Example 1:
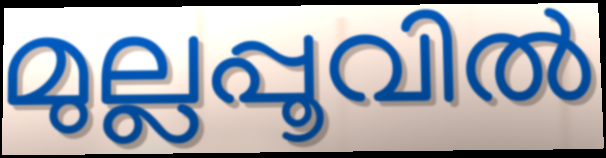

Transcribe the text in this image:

മുല്ലപ്പൂവിൽ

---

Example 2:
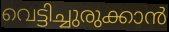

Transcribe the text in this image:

വെട്ടിച്ചുരുക്കാൻ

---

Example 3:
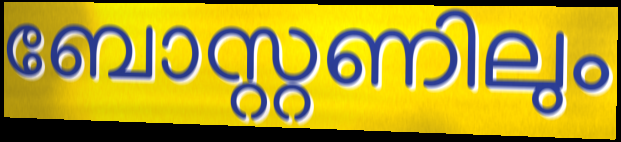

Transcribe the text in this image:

ബോസ്റ്റണിലും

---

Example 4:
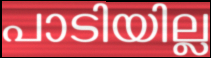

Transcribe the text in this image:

പാടിയില്ല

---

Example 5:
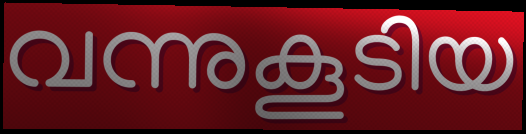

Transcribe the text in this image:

വന്നുകൂടിയ